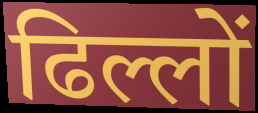
ढिल्लों